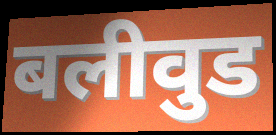
बलीवुड